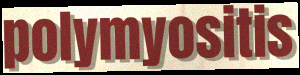
polymyositis